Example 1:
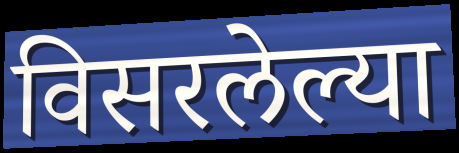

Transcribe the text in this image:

विसरलेल्या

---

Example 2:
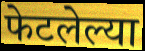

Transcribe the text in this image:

फेटलेल्या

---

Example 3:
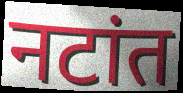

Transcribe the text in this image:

नटांत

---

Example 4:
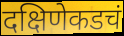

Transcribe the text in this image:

दक्षिणेकडचं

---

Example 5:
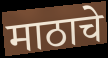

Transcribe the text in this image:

माठाचे